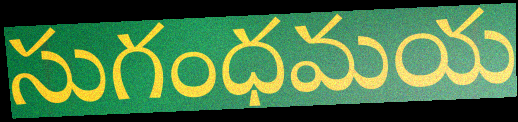
సుగంధమయ